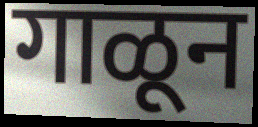
गाळून